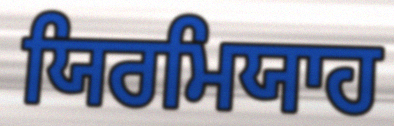
ਯਿਰਮਿਯਾਹ